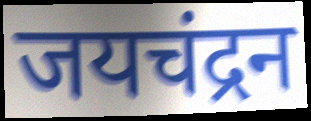
जयचंद्रन